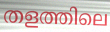
തളത്തിലെ